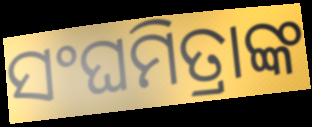
ସଂଘମିତ୍ରାଙ୍କ